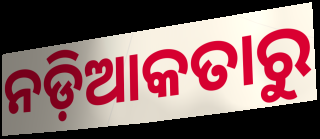
ନଡ଼ିଆକତାରୁ